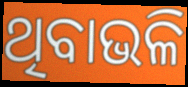
ଥିବାଭଳି